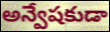
అన్వేషకుడా